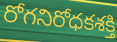
రోగనిరోధకశక్తి